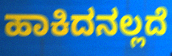
ಹಾಕಿದನಲ್ಲದೆ